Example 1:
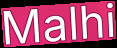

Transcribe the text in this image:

Malhi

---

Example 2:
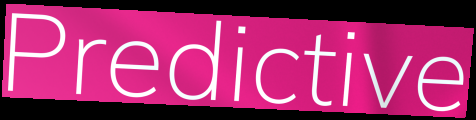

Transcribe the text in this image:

Predictive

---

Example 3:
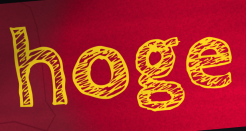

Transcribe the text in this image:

hoge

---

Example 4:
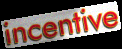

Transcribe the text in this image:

incentive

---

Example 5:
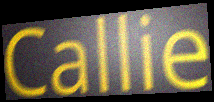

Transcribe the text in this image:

Callie